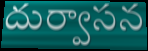
దుర్వాసన